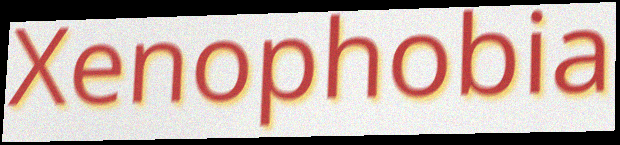
Xenophobia